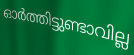
ഓർത്തിട്ടുണ്ടാവില്ല